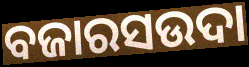
ବଜାରସଉଦା